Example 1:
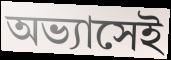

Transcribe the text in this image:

অভ্যাসেই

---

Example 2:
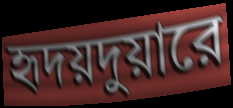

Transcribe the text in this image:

হৃদয়দুয়ারে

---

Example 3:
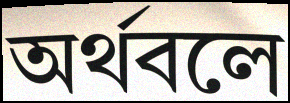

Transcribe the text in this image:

অর্থবলে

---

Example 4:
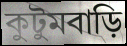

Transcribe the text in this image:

কুটুমবাড়ি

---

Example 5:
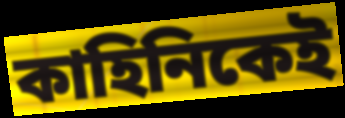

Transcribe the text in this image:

কাহিনিকেই